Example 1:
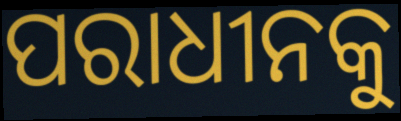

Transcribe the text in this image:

ପରାଧୀନକୁ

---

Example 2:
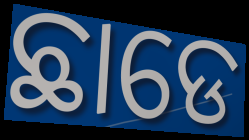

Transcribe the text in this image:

ଛାଡେ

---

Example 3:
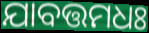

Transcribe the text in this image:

ଯାବତ୍ତମଧଃ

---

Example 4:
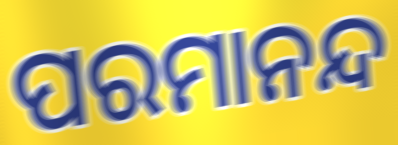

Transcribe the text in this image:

ପରମାନନ୍ଦ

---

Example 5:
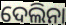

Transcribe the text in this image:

ଦେଲିନା